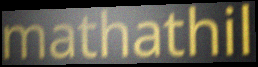
mathathil